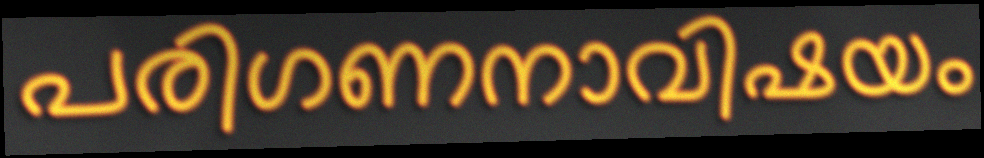
പരിഗണനാവിഷയം